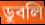
ডুবলি